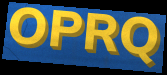
OPRQ